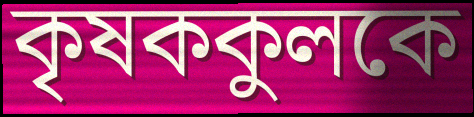
কৃষককুলকে